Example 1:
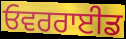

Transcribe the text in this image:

ਓਵਰਰਾਈਡ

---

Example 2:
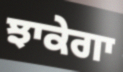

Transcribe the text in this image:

ਝਾਕੇਗਾ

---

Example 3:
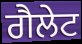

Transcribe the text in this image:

ਗੈਲੇਟ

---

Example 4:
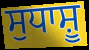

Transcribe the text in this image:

ਸੁਧਾਸ਼ੂ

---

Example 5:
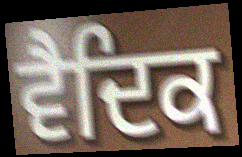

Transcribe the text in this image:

ਵੈਦਿਕ